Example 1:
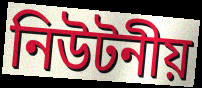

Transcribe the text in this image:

নিউটনীয়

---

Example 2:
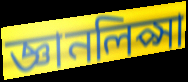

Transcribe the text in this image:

জ্ঞানলিপ্সা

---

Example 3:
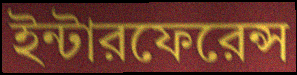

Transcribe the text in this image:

ইন্টারফেরেন্স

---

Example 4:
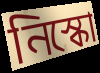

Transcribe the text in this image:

নিস্কো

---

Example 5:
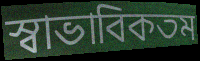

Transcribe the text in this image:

স্বাভাবিকতম